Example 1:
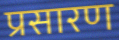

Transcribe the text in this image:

प्रसारण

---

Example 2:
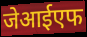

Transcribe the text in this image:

जेआईएफ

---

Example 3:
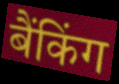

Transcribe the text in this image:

बैंकिंग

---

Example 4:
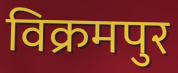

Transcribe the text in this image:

विक्रमपुर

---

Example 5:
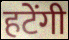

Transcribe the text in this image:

हटेंगी